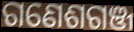
ଗଣେଶଗଞ୍ଜ